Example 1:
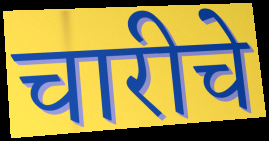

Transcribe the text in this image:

चारीचे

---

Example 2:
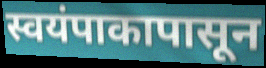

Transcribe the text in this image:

स्वयंपाकापासून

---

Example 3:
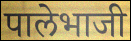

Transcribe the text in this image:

पालेभाजी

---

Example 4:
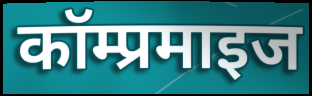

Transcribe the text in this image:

कॉम्प्रमाइज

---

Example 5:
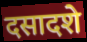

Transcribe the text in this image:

दसादशे